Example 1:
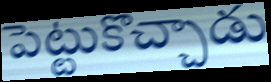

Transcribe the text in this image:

పెట్టుకొచ్చాడు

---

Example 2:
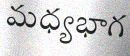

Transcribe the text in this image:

మధ్యభాగ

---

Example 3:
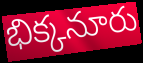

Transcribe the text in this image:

భిక్కనూరు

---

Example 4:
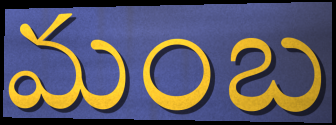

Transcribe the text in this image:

మంబ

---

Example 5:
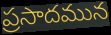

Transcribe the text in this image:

ప్రసాదమున